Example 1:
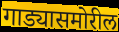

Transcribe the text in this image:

गाड्यासमोरील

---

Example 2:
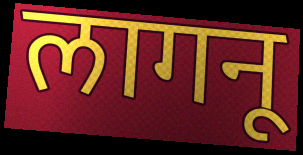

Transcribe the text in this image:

लागनू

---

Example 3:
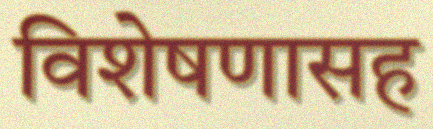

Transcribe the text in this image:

विशेषणासह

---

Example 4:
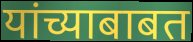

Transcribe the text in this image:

यांच्याबाबत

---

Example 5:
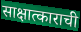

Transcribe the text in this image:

साक्षात्काराची